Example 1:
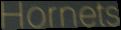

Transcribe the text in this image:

Hornets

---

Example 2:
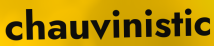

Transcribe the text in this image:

chauvinistic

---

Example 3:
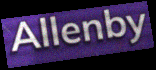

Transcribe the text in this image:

Allenby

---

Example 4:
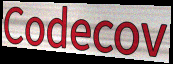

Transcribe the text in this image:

Codecov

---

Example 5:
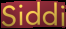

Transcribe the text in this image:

Siddi